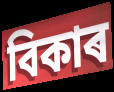
বিকাৰ